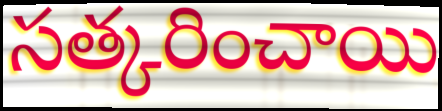
సత్కరించాయి